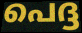
പെദ്ദ